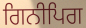
ਗਿਨੀਪਿਗ